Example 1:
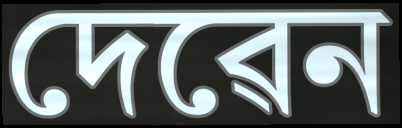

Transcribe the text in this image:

দেৱেন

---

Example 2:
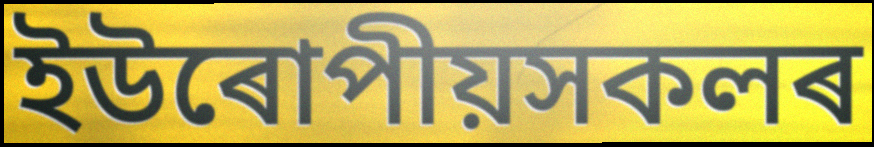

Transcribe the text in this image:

ইউৰোপীয়সকলৰ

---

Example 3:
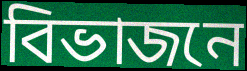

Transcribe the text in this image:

বিভাজনে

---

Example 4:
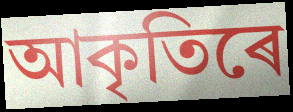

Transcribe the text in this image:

আকৃতিৰে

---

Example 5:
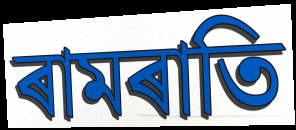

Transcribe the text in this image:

ৰামৰাতি